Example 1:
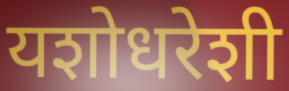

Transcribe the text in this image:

यशोधरेशी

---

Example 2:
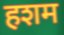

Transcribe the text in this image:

हशम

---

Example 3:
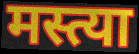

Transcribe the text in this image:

मस्त्या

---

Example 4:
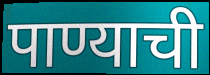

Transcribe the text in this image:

पाण्याची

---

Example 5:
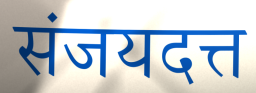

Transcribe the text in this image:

संजयदत्त